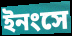
ইনংসে